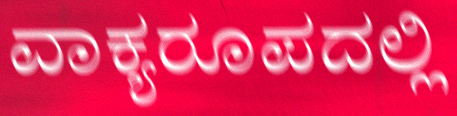
ವಾಕ್ಯರೂಪದಲ್ಲಿ